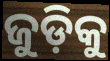
ଜୁଡ଼ିକୁ